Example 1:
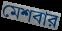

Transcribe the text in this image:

মেশবার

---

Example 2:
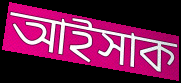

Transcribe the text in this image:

আইসাক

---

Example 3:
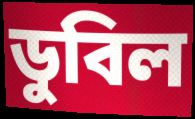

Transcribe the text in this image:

ডুবিল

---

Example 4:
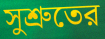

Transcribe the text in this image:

সুশ্রুতের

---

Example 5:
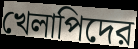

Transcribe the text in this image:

খেলাপিদের